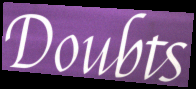
Doubts